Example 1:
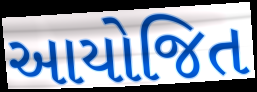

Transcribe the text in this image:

આયોજિત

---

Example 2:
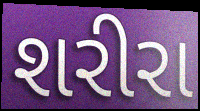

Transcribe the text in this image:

શરીરા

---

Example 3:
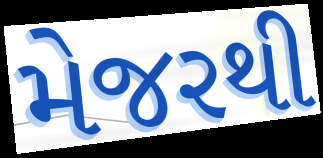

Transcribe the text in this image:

મેજરથી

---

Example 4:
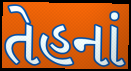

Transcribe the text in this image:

તેહનાં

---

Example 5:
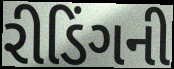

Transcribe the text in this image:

રીડિંગની